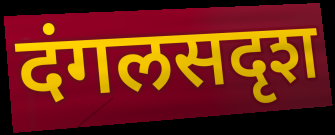
दंगलसदृश